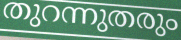
തുറന്നുതരും